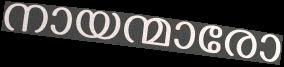
നായന്മാരോ